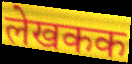
लेखकक